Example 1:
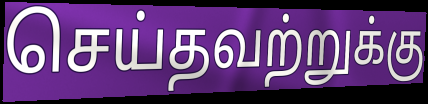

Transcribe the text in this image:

செய்தவற்றுக்கு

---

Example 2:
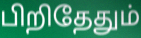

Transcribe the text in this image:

பிறிதேதும்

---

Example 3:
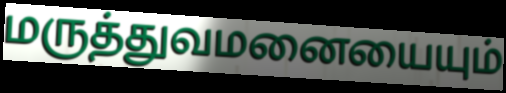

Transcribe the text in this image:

மருத்துவமனையையும்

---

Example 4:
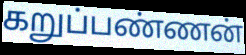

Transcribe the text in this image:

கறுப்பண்ணன்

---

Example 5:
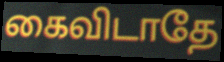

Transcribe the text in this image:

கைவிடாதே